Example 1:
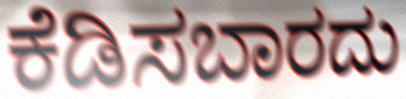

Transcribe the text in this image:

ಕೆಡಿಸಬಾರದು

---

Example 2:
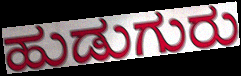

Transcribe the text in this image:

ಹುಡುಗುರು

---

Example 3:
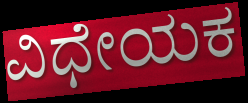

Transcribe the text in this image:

ವಿಧೇಯಕ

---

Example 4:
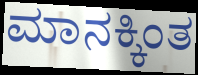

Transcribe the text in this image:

ಮಾನಕ್ಕಿಂತ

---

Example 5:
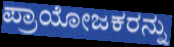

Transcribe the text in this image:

ಪ್ರಾಯೋಜಕರನ್ನು